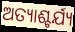
ଅତ୍ୟାଶ୍ଚର୍ଯ୍ୟ